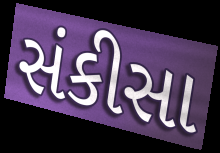
સંકીસા